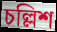
চল্লিশ